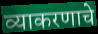
व्याकरणाचे